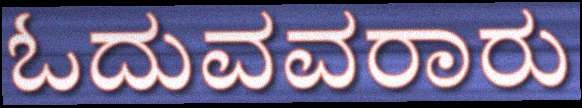
ಓದುವವರಾರು